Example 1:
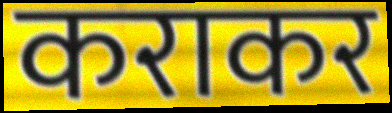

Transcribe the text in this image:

कराकर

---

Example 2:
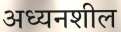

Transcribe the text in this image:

अध्यनशील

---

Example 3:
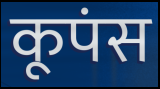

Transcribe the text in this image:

कूपंस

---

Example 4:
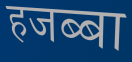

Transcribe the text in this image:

हजब्बा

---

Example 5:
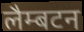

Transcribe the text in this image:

लैम्बटन